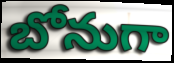
బోనుగా